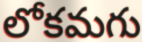
లోకమగు